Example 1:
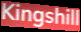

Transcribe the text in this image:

Kingshill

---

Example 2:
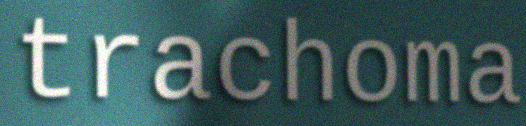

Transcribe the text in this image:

trachoma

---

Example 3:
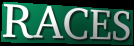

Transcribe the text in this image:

RACES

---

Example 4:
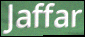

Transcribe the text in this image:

Jaffar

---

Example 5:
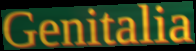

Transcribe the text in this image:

Genitalia